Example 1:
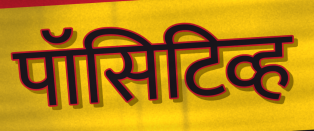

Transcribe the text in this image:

पॉसिटिव्ह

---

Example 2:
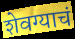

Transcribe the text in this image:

शेवग्याचं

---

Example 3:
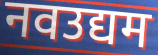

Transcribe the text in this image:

नवउद्यम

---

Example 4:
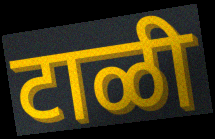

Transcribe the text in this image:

टाळी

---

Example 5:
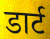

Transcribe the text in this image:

डार्ट